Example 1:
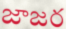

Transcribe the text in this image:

జాజర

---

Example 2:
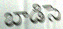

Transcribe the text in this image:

బాడిసె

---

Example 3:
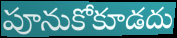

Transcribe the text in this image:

పూనుకోకూడదు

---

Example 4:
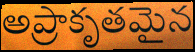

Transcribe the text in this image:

అప్రాకృతమైన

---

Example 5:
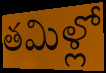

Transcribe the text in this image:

తమిళ్లో